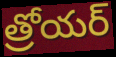
త్రోయర్